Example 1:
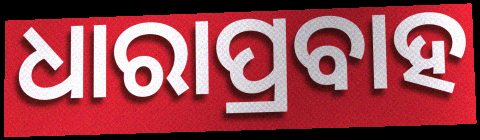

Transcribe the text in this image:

ଧାରାପ୍ରବାହ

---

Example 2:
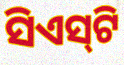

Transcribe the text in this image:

ସିଏସ୍‌ଟି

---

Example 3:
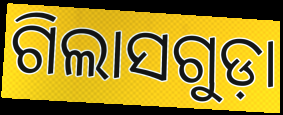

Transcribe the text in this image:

ଗିଲାସଗୁଡ଼ା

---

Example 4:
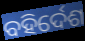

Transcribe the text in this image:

ବହିର୍ଦେଶ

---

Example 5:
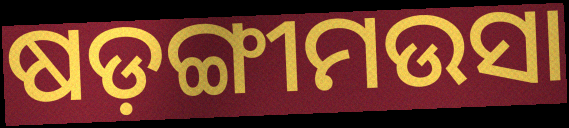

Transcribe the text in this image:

ଷଡ଼ଙ୍ଗୀମଉସା